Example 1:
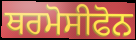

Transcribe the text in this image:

ਥਰਮੋਸੀਫੋਨ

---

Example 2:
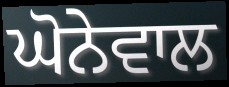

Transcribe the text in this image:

ਘੋਨੇਵਾਲ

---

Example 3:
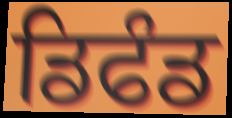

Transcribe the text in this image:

ਡਿਫੰਡ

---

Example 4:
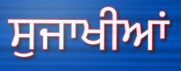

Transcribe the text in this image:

ਸੁਜਾਖੀਆਂ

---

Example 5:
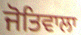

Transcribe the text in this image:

ਜੋਤਿਵਾਲਾ